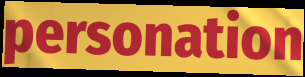
personation